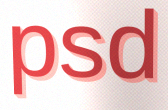
psd